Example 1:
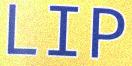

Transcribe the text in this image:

LIP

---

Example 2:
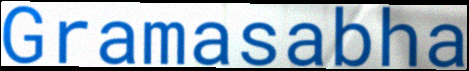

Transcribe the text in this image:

Gramasabha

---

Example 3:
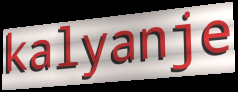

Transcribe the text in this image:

kalyanje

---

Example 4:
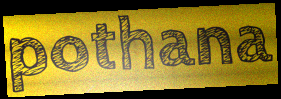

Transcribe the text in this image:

pothana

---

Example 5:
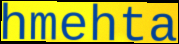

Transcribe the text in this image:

hmehta